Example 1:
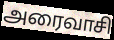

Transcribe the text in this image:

அரைவாசி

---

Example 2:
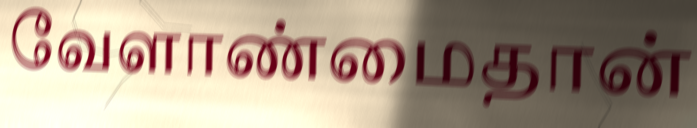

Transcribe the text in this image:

வேளாண்மைதான்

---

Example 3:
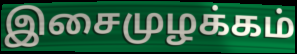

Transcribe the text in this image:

இசைமுழக்கம்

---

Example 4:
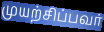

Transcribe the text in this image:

முயற்சிப்பவர்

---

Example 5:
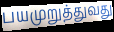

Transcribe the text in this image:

பயமுறுத்துவது